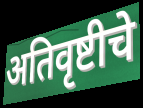
अतिवृष्टीचे